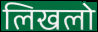
लिखलो